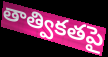
తాత్వికతపై